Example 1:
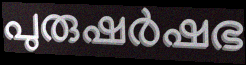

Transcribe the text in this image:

പുരുഷർഷഭ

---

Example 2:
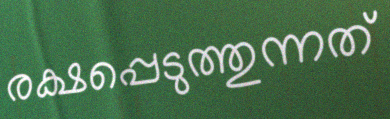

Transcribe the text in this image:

രക്ഷപ്പെടുത്തുന്നത്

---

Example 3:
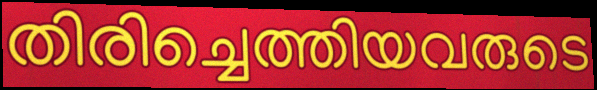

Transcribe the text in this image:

തിരിച്ചെത്തിയവരുടെ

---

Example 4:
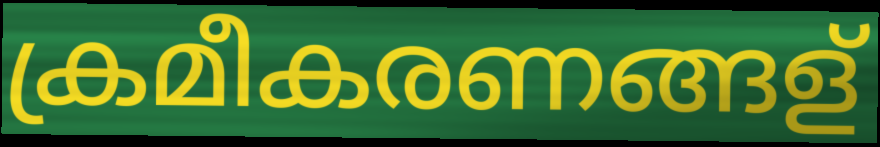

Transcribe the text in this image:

ക്രമീകരണങ്ങള്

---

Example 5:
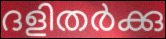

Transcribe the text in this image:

ദളിതർക്കു